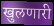
खुलणारी